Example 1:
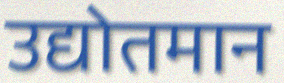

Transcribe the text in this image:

उद्योतमान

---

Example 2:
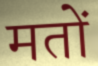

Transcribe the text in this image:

मतों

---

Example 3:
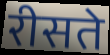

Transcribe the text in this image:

रीसते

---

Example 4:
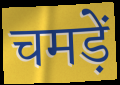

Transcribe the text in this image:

चमड़ें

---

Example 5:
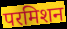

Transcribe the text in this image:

परमिशन